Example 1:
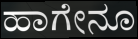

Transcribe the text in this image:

ಹಾಗೇನೂ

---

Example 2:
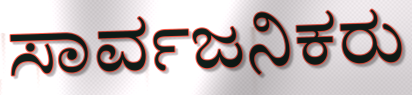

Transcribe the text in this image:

ಸಾರ್ವಜನಿಕರು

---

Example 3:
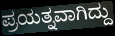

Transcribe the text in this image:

ಪ್ರಯತ್ನವಾಗಿದ್ದು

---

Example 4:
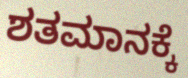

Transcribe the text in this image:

ಶತಮಾನಕ್ಕೆ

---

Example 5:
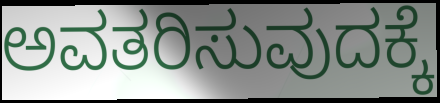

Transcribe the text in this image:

ಅವತರಿಸುವುದಕ್ಕೆ